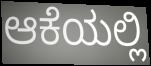
ಆಕೆಯಲ್ಲಿ